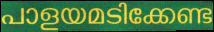
പാളയമടിക്കേണ്ട